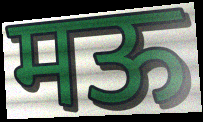
मऊ